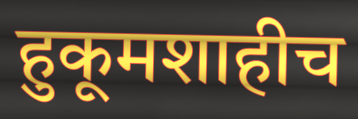
हुकूमशाहीच